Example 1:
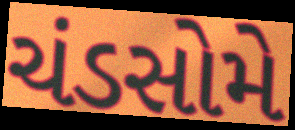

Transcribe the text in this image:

ચંડસોમે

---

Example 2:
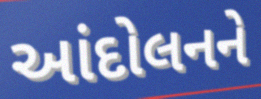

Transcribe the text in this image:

આંદોલનને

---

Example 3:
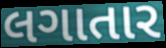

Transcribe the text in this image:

લગાતાર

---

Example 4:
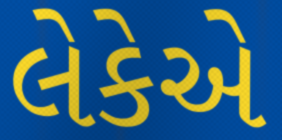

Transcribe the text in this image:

લેકેએ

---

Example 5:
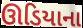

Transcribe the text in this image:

ઊડિયાના